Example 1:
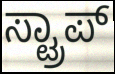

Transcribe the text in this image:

ಸ್ಟ್ರಾಪ್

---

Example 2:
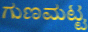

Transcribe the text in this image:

ಗುಣಮಟ್ಟ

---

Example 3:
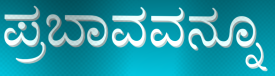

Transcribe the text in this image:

ಪ್ರಬಾವವನ್ನೂ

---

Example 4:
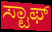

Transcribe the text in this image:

ಸ್ಟಾಫ್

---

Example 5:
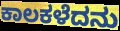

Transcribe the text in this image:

ಕಾಲಕಳೆದನು